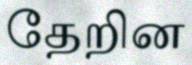
தேறின